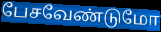
பேசவேண்டுமோ